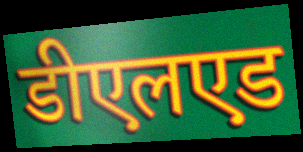
डीएलएड